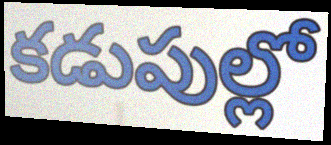
కడుపుల్లో